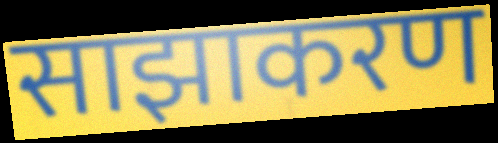
साझाकरण